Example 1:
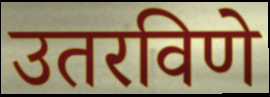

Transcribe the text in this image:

उतरविणे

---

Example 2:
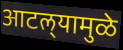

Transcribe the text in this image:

आटल्यामुळे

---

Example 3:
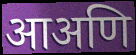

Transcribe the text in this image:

आअणि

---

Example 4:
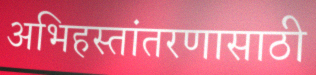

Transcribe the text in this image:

अभिहस्तांतरणासाठी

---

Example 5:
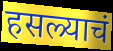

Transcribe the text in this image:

हसल्याचं